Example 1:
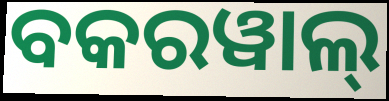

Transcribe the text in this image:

ବକରୱାଲ୍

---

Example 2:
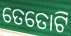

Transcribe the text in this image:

ତେତୋଟି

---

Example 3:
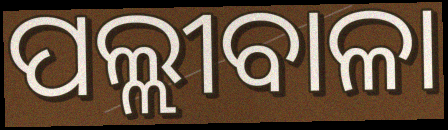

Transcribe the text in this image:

ପଲ୍ଲୀବାଳା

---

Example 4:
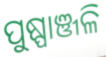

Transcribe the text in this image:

ପୁଷ୍ପାଞ୍ଜଳି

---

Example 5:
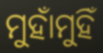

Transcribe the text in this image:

ମୁହାଁମୁହିଁ